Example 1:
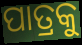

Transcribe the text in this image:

ପାତ୍ରକୁ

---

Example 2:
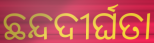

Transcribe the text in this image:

ଛନ୍ଦଦୀର୍ଘତା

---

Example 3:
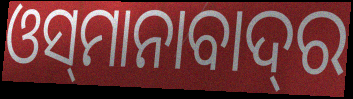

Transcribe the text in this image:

ଓସ୍‌ମାନାବାଦ୍‌ର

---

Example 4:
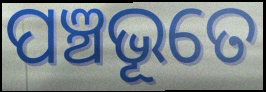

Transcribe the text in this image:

ପଞ୍ଚଭୂତେ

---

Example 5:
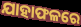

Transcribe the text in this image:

ଯାହାଫଳରେ